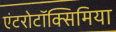
एंटरोटॉक्सिमिया